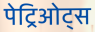
पेट्रिओट्स